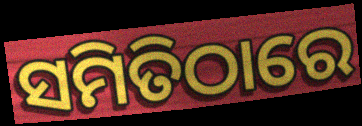
ସମିତିଠାରେ